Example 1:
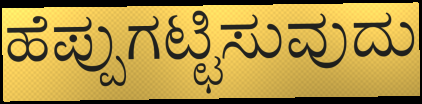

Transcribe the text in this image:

ಹೆಪ್ಪುಗಟ್ಟಿಸುವುದು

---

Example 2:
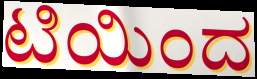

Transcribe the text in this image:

ಟಿಯಿಂದ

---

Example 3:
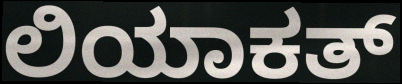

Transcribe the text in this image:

ಲಿಯಾಕತ್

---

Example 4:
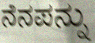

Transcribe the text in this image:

ನೆನಪನ್ನು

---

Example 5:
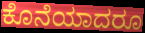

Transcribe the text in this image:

ಕೊನೆಯಾದರೂ